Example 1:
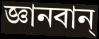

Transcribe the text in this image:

জ্ঞানবান্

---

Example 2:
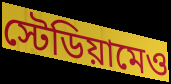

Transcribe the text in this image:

স্টেডিয়ামেও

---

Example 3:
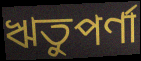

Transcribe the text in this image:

ঋতুপর্ণা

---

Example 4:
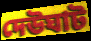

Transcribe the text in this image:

দেউঘাট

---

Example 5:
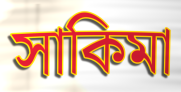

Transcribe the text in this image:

সাকিমা